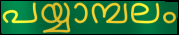
പയ്യാമ്പലം